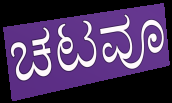
ಚಟವೂ